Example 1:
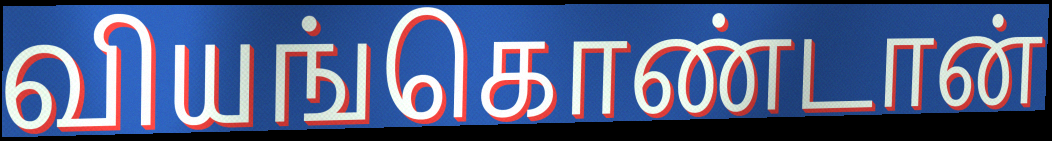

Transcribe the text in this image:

வியங்கொண்டான்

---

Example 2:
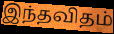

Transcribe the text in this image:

இந்தவிதம்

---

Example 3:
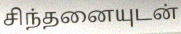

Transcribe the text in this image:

சிந்தனையுடன்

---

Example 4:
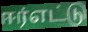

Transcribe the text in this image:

ஈர்எட்டு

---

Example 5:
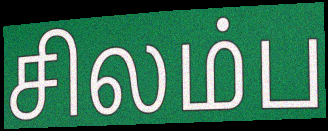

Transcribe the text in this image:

சிலம்ப